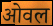
ओवल